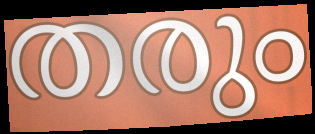
തരും